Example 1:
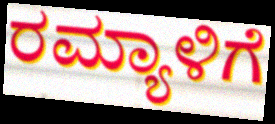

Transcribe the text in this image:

ರಮ್ಯಾಳಿಗೆ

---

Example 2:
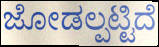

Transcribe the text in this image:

ಜೋಡಲ್ಪಟ್ಟಿದೆ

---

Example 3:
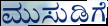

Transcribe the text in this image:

ಮುಸುಡಿಗೆ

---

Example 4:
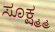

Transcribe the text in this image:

ಸೂಕ್ಷ್ಮ್ಮ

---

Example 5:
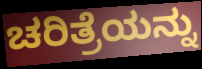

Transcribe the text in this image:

ಚರಿತ್ರೆಯನ್ನು